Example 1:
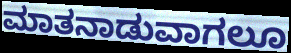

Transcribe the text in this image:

ಮಾತನಾಡುವಾಗಲೂ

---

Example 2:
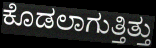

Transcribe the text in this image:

ಕೊಡಲಾಗುತ್ತಿತ್ತು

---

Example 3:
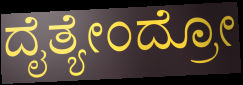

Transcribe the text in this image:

ದೈತ್ಯೇಂದ್ರೋ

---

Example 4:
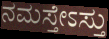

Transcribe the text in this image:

ನಮಸ್ತೇಽಸ್ತು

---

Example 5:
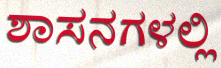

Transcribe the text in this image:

ಶಾಸನಗಳಲ್ಲಿ